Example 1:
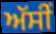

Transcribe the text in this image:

ਅੱਸੀਂ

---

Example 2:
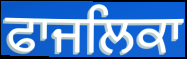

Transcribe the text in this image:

ਫਾਜਲਿਕਾ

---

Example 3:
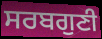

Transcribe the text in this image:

ਸਰਬਗੁਣੀ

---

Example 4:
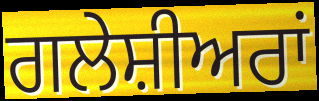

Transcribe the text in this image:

ਗਲੇਸ਼ੀਅਰਾਂ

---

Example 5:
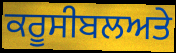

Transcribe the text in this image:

ਕਰੂਸੀਬਲਅਤੇ